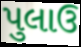
પુલાઉ